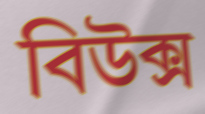
বিউক্স